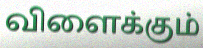
விளைக்கும்